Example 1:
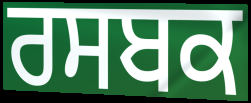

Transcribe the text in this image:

ਰਸਬਕ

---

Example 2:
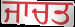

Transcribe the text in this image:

ਜਾਚਤ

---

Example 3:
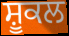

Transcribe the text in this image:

ਸ਼ੂਕਲ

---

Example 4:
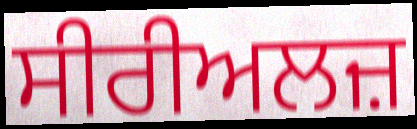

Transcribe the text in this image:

ਸੀਰੀਅਲਜ਼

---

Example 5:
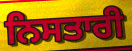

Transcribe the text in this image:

ਨਿਸਤਾਰੀ